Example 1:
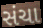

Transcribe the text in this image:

સંચા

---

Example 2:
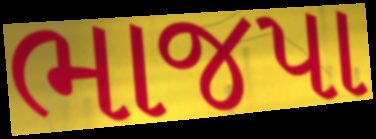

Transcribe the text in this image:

ભાજપા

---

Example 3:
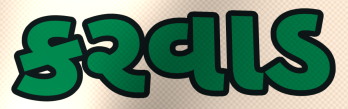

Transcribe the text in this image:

કરવાડ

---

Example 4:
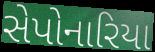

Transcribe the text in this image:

સેપોનારિયા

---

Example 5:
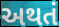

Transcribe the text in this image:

અથતં